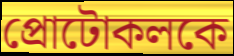
প্রোটোকলকে